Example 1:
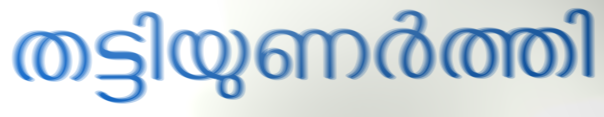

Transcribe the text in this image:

തട്ടിയുണർത്തി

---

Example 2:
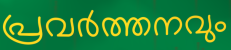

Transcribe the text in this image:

പ്രവർത്തനവും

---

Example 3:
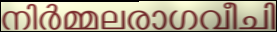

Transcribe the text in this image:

നിർമ്മലരാഗവീചി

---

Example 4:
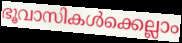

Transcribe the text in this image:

ഭൂവാസികൾക്കെല്ലാം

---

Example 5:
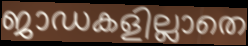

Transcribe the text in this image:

ജാഡകളില്ലാതെ